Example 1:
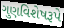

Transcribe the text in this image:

ગુણવિશેષરૂપે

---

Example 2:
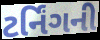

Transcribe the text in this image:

ટર્નિંગની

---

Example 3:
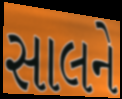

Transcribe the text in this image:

સાલને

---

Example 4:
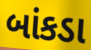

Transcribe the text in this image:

બાંકડા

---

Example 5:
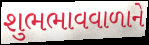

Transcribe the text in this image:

શુભભાવવાળાને